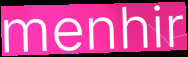
menhir